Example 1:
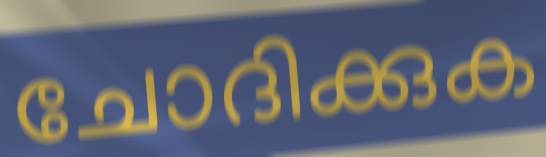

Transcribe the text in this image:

ചോദിക്കുക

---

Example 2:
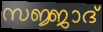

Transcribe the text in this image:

സജ്ജാദ്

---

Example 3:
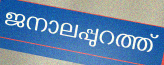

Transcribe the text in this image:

ജനാലപ്പുറത്ത്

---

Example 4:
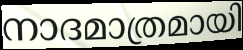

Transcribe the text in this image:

നാദമാത്രമായി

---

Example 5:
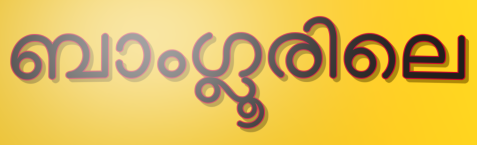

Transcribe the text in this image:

ബാംഗ്ലൂരിലെ